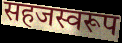
सहजस्वरूप